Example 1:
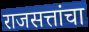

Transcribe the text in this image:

राजसत्तांचा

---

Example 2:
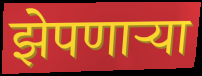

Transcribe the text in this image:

झेपणार्‍या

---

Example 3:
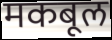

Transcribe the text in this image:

मकबूल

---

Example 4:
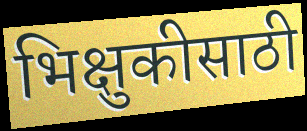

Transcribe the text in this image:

भिक्षुकीसाठी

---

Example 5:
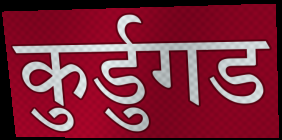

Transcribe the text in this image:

कुर्डुगड